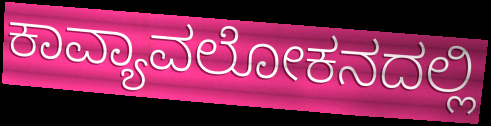
ಕಾವ್ಯಾವಲೋಕನದಲ್ಲಿ